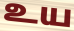
உய